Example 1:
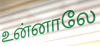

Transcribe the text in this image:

உன்னாலே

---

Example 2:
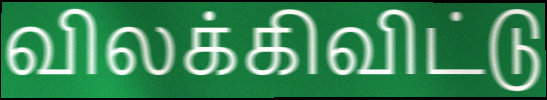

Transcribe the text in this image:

விலக்கிவிட்டு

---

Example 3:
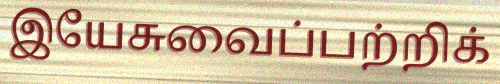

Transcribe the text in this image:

இயேசுவைப்பற்றிக்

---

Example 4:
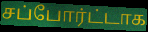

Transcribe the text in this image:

சப்போர்ட்டாக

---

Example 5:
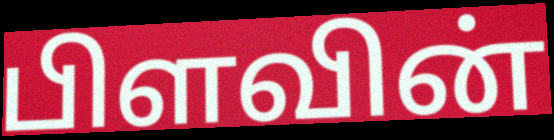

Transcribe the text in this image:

பிளவின்